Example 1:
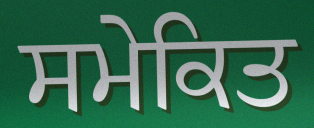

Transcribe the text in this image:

ਸਮੇਕਿਤ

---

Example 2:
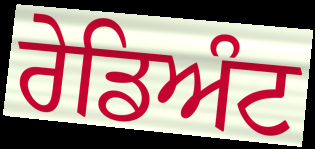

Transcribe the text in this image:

ਰੇਡਿਅੰਟ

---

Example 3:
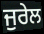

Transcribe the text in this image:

ਜੁਰੇਲ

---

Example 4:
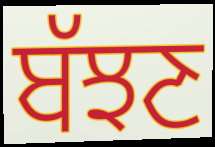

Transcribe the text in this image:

ਬੱਝਣ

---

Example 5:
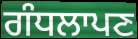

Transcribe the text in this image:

ਗੰਧਲਾਪਣ